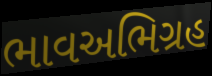
ભાવઅભિગ્રહ